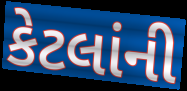
કેટલાંની